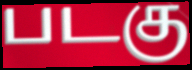
படகு